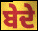
ਬੇਦੇ